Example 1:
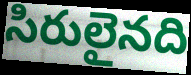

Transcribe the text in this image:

సిరులైనది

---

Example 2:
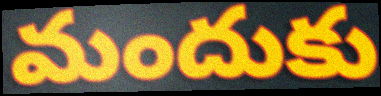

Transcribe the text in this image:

మందుకు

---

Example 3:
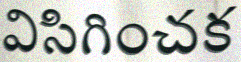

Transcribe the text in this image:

విసిగించక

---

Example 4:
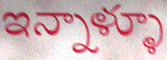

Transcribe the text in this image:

ఇన్నాళ్ళూ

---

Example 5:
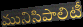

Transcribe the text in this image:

మునిసిపాలిటీ